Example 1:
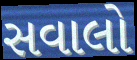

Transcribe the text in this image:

સવાલો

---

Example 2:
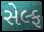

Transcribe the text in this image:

સેલ્ફ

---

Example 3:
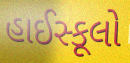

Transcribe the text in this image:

હાઈસ્કૂલો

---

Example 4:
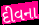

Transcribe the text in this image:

દીવના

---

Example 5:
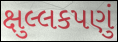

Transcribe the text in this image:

ક્ષુલ્લકપણું